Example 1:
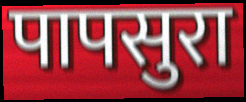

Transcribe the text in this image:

पापसुरा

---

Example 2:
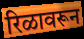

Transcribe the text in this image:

रिळावरून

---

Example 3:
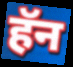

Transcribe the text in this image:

हॅन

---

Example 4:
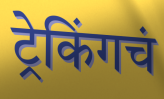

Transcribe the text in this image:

ट्रेकिंगचं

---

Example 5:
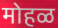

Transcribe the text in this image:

मोहळ